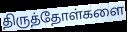
திருத்தோள்களை